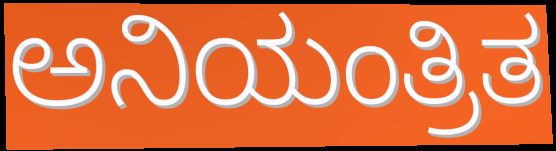
ಅನಿಯಂತ್ರಿತ